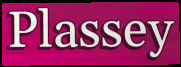
Plassey